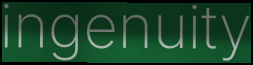
ingenuity